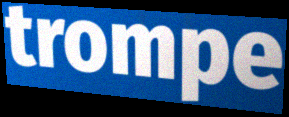
trompe